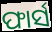
ଫାର୍ସ